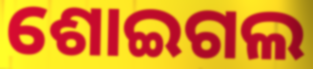
ଶୋଇଗଲ